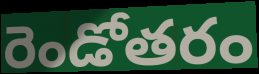
రెండోతరం